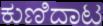
ಕುಣಿದಾಟ